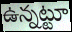
ఉన్నట్టూ